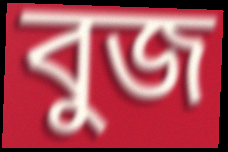
বুজ